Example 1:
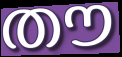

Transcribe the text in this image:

തൗ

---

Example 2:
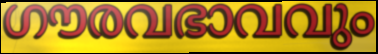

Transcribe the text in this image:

ഗൗരവഭാവവും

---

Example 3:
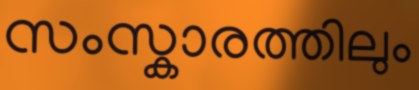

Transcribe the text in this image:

സംസ്കാരത്തിലും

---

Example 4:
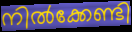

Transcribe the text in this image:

നിൽക്കേണ്ടി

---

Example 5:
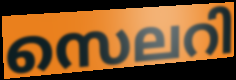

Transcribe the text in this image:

സെലറി